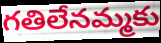
గతిలేనమ్మకు